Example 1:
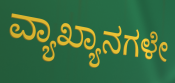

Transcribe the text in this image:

ವ್ಯಾಖ್ಯಾನಗಳೇ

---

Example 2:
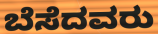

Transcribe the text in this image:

ಬೆಸೆದವರು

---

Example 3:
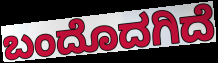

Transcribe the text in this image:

ಬಂದೊದಗಿದೆ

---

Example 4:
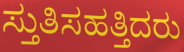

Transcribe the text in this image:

ಸ್ತುತಿಸಹತ್ತಿದರು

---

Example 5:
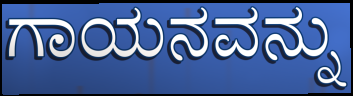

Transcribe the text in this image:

ಗಾಯನವನ್ನು